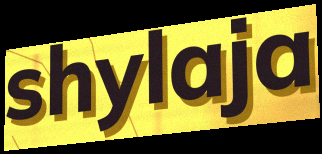
shylaja